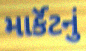
માર્કૅટનું